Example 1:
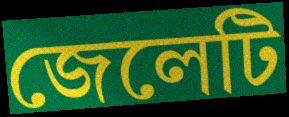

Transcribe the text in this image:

জেলেটি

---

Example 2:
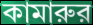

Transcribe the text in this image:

কামারুর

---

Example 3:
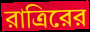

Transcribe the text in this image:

রাত্রিরের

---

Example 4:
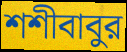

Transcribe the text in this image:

শশীবাবুর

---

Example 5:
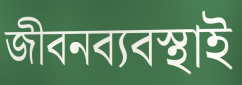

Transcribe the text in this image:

জীবনব্যবস্থাই